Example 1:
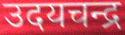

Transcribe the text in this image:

उदयचन्द्र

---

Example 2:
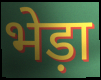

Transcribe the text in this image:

भेड़ा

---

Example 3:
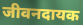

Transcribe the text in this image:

जीवनदायक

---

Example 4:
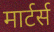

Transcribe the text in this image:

मार्टर्स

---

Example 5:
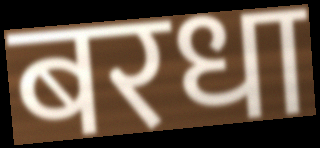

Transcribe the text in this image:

बरधा